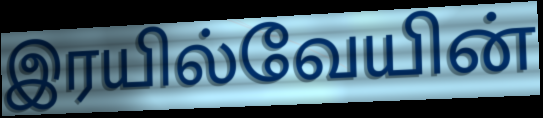
இரயில்வேயின்